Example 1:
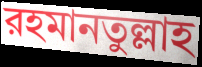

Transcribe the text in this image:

রহমানতুল্লাহ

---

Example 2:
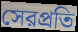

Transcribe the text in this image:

সেরপ্রতি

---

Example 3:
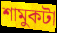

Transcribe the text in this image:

শামুকটা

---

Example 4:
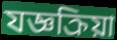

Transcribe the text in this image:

যজ্ঞক্রিয়া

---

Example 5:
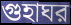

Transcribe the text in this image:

গুহাঘর